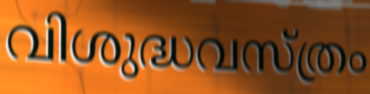
വിശുദ്ധവസ്ത്രം